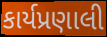
કાર્યપ્રણાલી